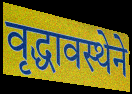
वृद्धावस्थेने